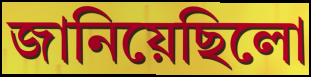
জানিয়েছিলো